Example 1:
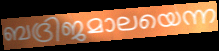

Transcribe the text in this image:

ബദ്രിജമാലയെന്ന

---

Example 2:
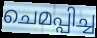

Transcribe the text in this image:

ചെമപ്പിച്ച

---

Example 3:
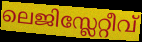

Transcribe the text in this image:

ലെജിസ്ലേറ്റീവ്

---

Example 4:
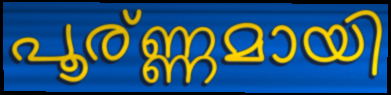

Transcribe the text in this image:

പൂര്ണ്ണമായി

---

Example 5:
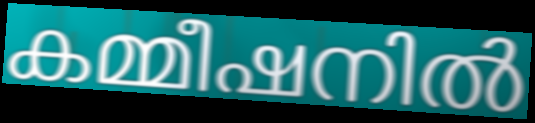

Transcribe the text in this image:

കമ്മീഷനിൽ